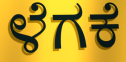
ಳೆಗಕೆ